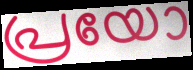
പ്രയോ